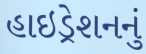
હાઇડ્રેશનનું